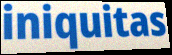
iniquitas